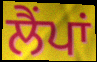
ਲੈਂਪਾਂ